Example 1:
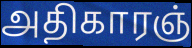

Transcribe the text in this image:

அதிகாரஞ்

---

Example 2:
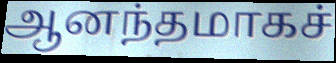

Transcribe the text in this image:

ஆனந்தமாகச்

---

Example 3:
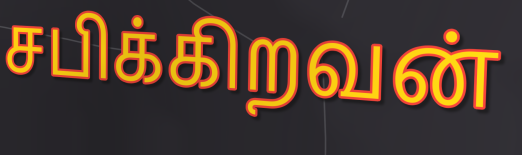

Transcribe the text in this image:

சபிக்கிறவன்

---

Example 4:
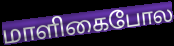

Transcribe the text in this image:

மாளிகைபோல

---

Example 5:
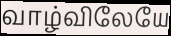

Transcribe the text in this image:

வாழ்விலேயே